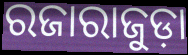
ରଜାରାଜୁଡ଼ା